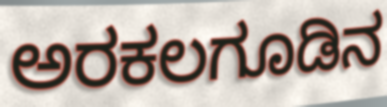
ಅರಕಲಗೂಡಿನ